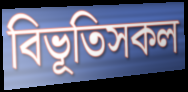
বিভূতিসকল